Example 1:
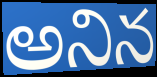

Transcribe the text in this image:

అనిన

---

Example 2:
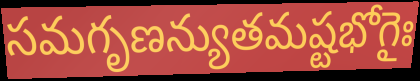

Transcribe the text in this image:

సమగృణన్యుతమష్టభోగైః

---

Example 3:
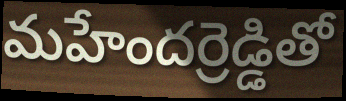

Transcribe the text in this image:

మహేందర్రెడ్డితో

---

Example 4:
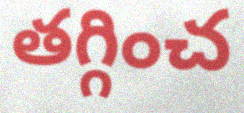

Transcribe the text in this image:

తగ్గించ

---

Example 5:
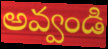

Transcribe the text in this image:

అవ్వండి